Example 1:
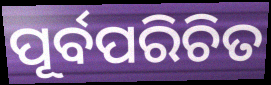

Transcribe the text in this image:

ପୂର୍ବପରିଚିତ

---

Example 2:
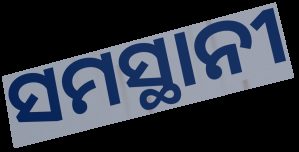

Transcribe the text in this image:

ସମସ୍ଥାନୀ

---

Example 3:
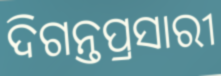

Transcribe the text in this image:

ଦିଗନ୍ତପ୍ରସାରୀ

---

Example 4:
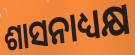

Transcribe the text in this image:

ଶାସନାଧ୍ୟକ୍ଷ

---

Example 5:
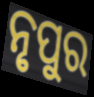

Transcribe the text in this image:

ନୃପୁର